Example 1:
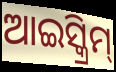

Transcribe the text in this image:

ଆଇସ୍କ୍ରିମ୍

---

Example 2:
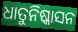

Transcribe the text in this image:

ଧାତୁନିଷ୍କାସନ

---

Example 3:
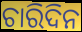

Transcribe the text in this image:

ଚାରିଦିନ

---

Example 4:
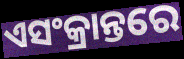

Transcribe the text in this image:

ଏସଂକ୍ରାନ୍ତରେ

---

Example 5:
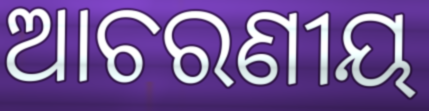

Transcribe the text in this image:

ଆଚରଣୀୟ